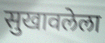
सुखावलेला